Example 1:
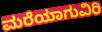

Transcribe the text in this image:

ಮರೆಯಾಗುವಿರಿ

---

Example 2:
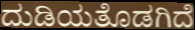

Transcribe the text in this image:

ದುಡಿಯತೊಡಗಿದೆ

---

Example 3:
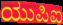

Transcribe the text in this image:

ಯುಪಿಐ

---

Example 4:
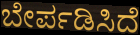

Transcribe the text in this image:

ಬೇರ್ಪಡಿಸಿದೆ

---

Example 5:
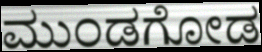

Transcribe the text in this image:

ಮುಂಡಗೋಡ